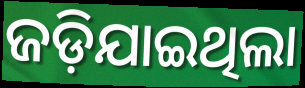
ଜଡ଼ିଯାଇଥିଲା